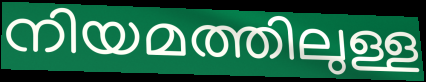
നിയമത്തിലുള്ള